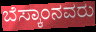
ಬೆಸ್ಕಾಂನವರು